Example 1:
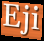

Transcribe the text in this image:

Eji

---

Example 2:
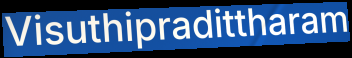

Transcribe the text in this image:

Visuthipradittharam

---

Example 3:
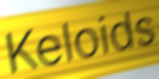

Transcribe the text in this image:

Keloids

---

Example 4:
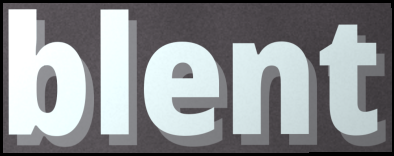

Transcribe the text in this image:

blent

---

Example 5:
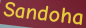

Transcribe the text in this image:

Sandoha